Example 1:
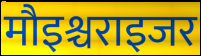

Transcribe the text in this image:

मौइश्चराइजर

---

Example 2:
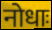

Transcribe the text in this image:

नोधाः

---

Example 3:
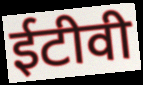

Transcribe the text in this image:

ईटीवी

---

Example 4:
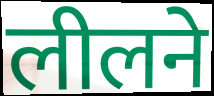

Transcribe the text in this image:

लीलने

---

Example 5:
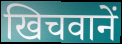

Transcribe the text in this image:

खिचवानें